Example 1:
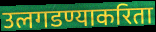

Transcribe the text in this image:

उलगडण्याकरिता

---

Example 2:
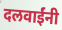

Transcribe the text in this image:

दलवाईंनी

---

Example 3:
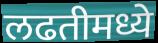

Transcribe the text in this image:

लढतीमध्ये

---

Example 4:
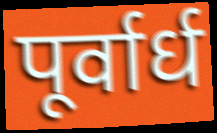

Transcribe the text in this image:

पूर्वार्ध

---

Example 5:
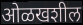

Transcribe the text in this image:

ओळखशील